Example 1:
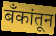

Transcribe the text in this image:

बँकांतून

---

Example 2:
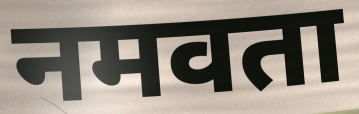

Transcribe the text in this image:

नमवता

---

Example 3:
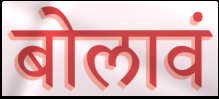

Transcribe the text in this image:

बोलावं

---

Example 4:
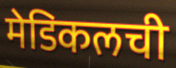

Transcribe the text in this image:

मेडिकलची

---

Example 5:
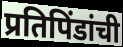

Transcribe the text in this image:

प्रतिपिंडांची